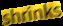
shrinks